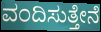
ವಂದಿಸುತ್ತೇನೆ